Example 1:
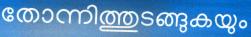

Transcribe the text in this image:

തോന്നിത്തുടങ്ങുകയും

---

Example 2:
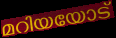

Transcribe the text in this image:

മറിയയോട്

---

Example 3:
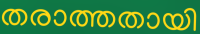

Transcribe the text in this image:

തരാത്തതായി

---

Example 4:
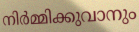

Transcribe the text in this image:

നിർമ്മിക്കുവാനും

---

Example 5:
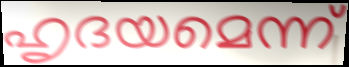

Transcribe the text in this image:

ഹൃദയമെന്ന്